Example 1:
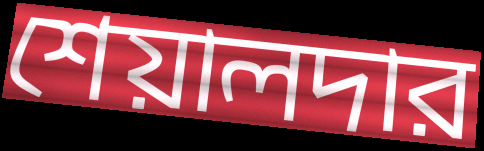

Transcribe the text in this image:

শেয়ালদার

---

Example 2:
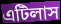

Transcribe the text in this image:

এটিলাস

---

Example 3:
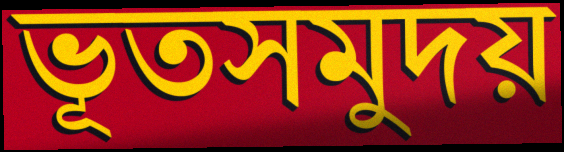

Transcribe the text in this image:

ভূতসমুদয়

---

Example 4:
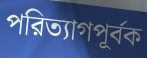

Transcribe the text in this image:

পরিত্যাগপূর্বক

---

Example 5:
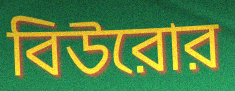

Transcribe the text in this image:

বিউরোর